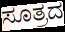
ಸೂತ್ರದ